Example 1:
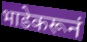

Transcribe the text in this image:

भाडेकरूनं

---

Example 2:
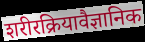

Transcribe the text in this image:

शरीरक्रियावैज्ञानिक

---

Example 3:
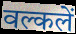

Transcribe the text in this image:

वल्कलें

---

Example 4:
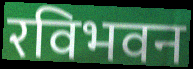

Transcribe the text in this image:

रविभवन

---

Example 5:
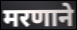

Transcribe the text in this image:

मरणाने